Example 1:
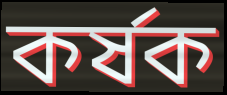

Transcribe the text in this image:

কর্ষক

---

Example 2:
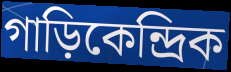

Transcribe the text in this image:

গাড়িকেন্দ্রিক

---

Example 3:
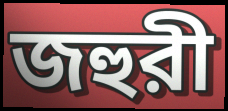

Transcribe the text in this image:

জহুরী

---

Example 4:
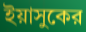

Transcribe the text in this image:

ইয়াসুকের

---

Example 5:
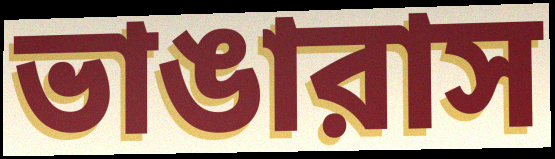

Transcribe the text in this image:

ভাঙারাস